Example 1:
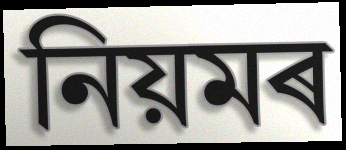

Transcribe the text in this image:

নিয়মৰ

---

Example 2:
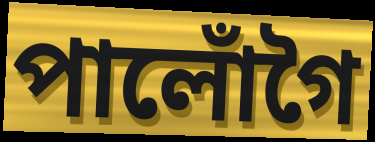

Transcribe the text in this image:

পালোঁগৈ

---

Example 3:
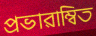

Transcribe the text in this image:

প্ৰভাৱাম্বিত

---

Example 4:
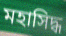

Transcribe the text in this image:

মহাসিদ্ধ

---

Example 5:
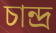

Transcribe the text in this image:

চান্দ্ৰ